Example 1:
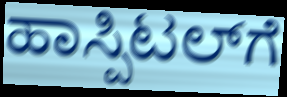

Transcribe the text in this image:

ಹಾಸ್ಪಿಟಲ್‌ಗೆ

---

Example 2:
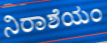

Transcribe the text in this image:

ನಿರಾಶೆಯಂ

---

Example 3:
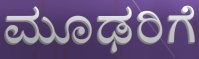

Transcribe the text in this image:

ಮೂಢರಿಗೆ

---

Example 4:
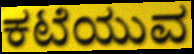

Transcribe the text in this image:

ಕಟೆಯುವ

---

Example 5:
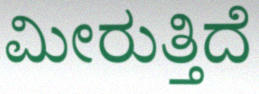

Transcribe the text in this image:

ಮೀರುತ್ತಿದೆ